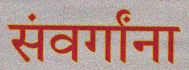
संवर्गांना